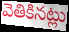
వెతికినట్లు